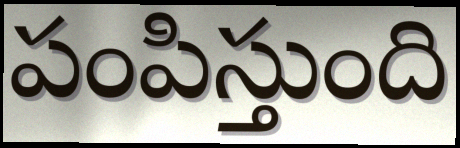
పంపిస్తుంది